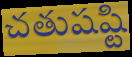
చతుషష్టి